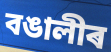
বঙালীৰ